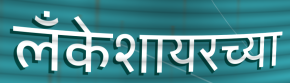
लँकेशायरच्या